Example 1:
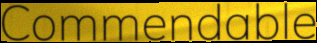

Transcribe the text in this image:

Commendable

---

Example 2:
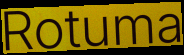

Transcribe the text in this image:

Rotuma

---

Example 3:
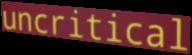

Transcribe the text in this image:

uncritical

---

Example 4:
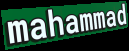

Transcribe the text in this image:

mahammad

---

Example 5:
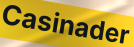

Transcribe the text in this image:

Casinader